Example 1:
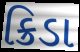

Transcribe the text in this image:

ક્રિડા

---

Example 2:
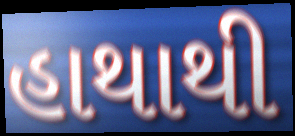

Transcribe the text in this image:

હાથાથી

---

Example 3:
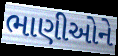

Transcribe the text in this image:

ભાણીઓને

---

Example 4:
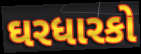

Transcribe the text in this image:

ઘરધારકો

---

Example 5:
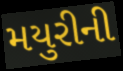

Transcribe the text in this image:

મયુરીની